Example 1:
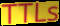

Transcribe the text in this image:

TTLs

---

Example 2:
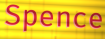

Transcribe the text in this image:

Spence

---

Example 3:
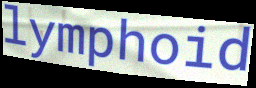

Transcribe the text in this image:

lymphoid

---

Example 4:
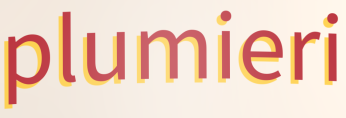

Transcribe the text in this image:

plumieri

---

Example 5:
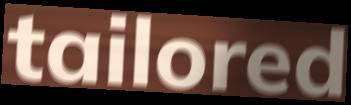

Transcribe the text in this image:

tailored